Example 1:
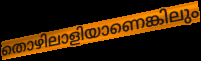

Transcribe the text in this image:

തൊഴിലാളിയാണെങ്കിലും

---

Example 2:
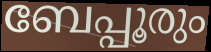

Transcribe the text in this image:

ബേപ്പൂരും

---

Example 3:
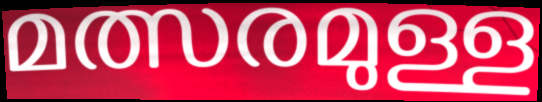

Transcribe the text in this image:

മത്സരമുള്ള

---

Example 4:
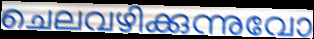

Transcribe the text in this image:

ചെലവഴിക്കുന്നുവോ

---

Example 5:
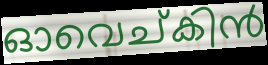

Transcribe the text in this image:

ഓവെച്കിൻ